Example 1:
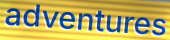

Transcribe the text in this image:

adventures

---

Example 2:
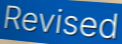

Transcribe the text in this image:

Revised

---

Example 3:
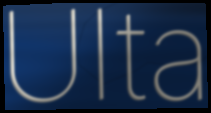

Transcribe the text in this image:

Ulta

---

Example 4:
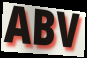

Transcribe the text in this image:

ABV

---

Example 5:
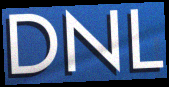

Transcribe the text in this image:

DNL